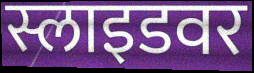
स्‍लाइडवर